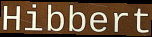
Hibbert